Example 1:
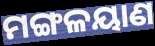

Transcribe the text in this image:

ମଙ୍ଗଳୟାଣ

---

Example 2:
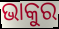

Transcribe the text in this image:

ଭାକୁର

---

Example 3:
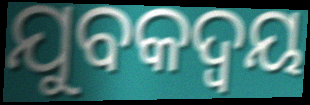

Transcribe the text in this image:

ଯୁବକଦ୍ୱୟ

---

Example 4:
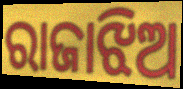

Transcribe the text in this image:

ରାଜାଝିଅ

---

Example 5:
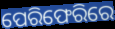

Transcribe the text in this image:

ପେରିଫେରିରେ